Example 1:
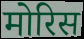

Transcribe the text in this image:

मोरिस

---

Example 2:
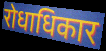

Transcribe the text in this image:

रोधाधिकार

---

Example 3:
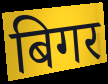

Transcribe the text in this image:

बिगर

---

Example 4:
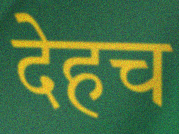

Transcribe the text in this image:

देहच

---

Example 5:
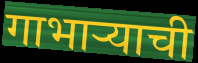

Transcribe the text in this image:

गाभार्‍याची